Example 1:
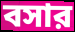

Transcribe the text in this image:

বসার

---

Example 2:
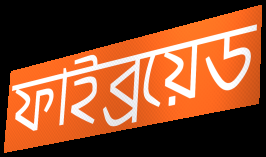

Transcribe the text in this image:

ফাইব্রয়েড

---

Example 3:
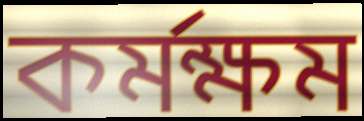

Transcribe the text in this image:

কর্মক্ষম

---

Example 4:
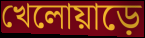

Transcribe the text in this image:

খেলোয়াড়ে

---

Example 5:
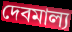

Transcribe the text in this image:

দেবমাল্য